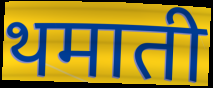
थमाती